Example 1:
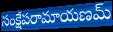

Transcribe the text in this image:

సంక్షేపరామాయణమ్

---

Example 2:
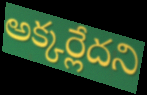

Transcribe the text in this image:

అక్కర్లేదని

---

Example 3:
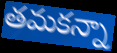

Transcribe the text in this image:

తమకన్నా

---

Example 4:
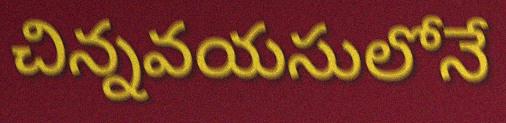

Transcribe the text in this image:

చిన్నవయసులోనే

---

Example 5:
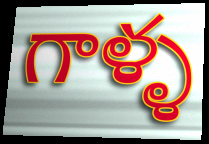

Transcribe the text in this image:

గాళ్ళ